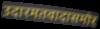
उदारमतवादासमोर